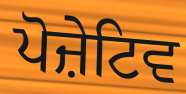
ਪੋਜ਼ੇਟਿਵ